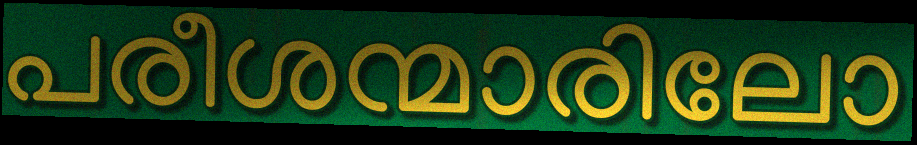
പരീശന്മാരിലോ